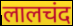
लालचंद